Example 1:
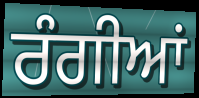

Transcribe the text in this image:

ਰੰਗੀਆਂ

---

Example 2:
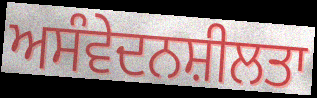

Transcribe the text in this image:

ਅਸੰਵੇਦਨਸ਼ੀਲਤਾ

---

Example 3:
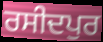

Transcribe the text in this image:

ਰਸੀਦਪੁਰ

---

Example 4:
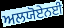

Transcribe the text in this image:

ਅਲਯੋਏਨਈ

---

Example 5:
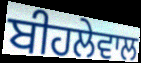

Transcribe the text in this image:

ਬੀਹਲੇਵਾਲ